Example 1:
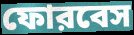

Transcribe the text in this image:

ফোরবেস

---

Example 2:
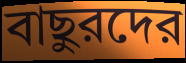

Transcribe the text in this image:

বাছুরদের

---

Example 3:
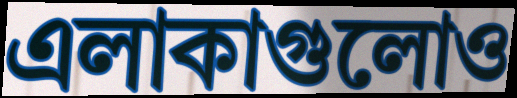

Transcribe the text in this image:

এলাকাগুলোও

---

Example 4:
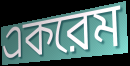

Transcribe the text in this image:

একরেম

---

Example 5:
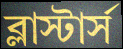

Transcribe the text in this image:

ব্লাস্টার্স